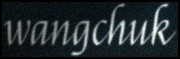
wangchuk